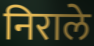
निराले